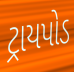
ટ્રાયપોડ